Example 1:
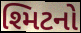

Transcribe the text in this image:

શ્મિટનો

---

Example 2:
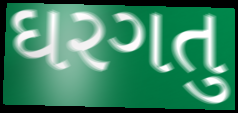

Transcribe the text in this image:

ઘરગતુ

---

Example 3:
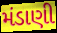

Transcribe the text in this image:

મંડાણી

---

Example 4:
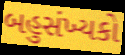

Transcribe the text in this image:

બહુસંખ્યકો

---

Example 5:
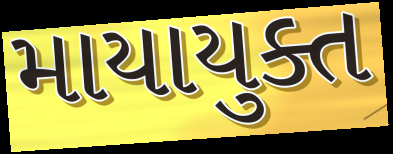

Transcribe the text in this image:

માયાયુક્ત